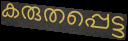
കരുതപ്പെട്ട